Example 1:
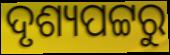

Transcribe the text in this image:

ଦୃଶ୍ୟପଟ୍ଟରୁ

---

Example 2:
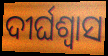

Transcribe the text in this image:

ଦୀର୍ଘଶ୍ବାସ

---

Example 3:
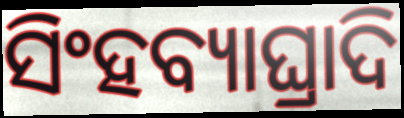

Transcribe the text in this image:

ସିଂହବ୍ୟାଘ୍ରାଦି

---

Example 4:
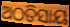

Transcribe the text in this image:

ଅଠତିସାୟ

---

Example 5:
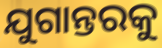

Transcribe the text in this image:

ଯୁଗାନ୍ତରକୁ